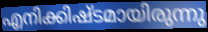
എനിക്കിഷ്ടമായിരുന്നു